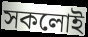
সকলোই